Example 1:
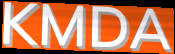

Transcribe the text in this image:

KMDA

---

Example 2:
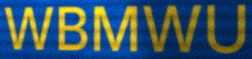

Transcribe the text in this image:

WBMWU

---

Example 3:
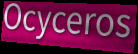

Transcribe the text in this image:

Ocyceros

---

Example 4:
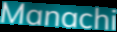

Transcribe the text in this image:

Manachi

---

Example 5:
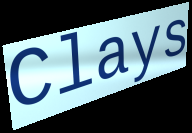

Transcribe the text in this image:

Clays